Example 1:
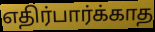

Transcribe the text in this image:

எதிர்பார்க்காத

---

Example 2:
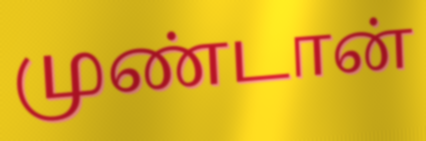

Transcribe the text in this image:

முண்டான்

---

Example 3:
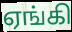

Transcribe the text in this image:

ஏங்கி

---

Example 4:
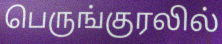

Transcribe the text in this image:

பெருங்குரலில்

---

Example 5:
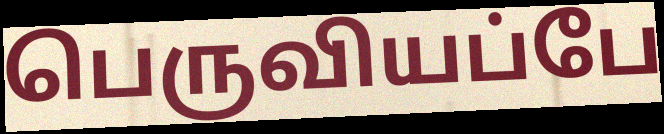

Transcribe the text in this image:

பெருவியப்பே